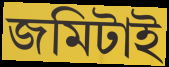
জমিটাই